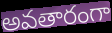
అవతారంగా